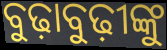
ବୁଢ଼ାବୁଢ଼ୀଙ୍କୁ